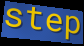
step